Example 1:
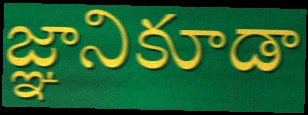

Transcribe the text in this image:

జ్ఞానికూడా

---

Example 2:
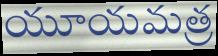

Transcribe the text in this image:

యూయమత్ర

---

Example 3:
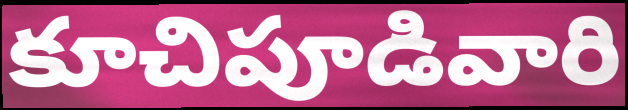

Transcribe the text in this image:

కూచిపూడివారి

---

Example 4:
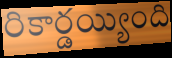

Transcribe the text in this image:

రికార్డయ్యింది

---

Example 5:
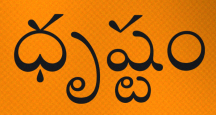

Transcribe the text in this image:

ధృష్టం